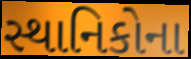
સ્થાનિકોના